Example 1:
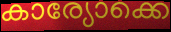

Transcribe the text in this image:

കാര്യോക്കെ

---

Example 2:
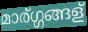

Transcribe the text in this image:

മാര്ഗ്ഗങ്ങള്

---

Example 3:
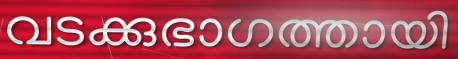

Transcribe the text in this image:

വടക്കുഭാഗത്തായി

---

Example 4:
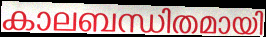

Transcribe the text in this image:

കാലബന്ധിതമായി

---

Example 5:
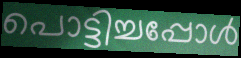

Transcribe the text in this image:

പൊട്ടിച്ചപ്പോൾ